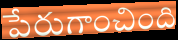
పేరుగాంచింది